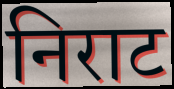
निराट